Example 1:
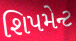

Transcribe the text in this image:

શિપમેન્ટ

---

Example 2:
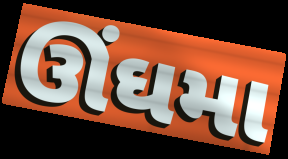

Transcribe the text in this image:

ઊંઘમા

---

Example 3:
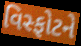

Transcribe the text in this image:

વિસ્ફોટને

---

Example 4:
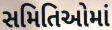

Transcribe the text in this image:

સમિતિઓમાં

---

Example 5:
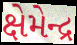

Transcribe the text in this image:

ક્ષેમેન્દ્ર